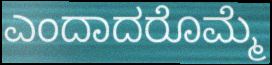
ಎಂದಾದರೊಮ್ಮೆ